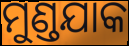
ମୁଣ୍ଡଯାକ